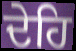
ਦੇਹਿ